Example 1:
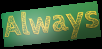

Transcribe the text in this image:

Always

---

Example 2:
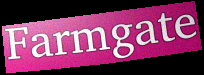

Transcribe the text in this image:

Farmgate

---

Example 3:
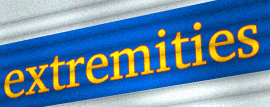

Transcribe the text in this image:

extremities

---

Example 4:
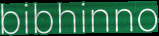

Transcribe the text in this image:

bibhinno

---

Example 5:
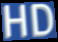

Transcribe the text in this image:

HD